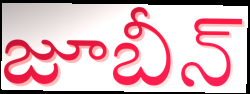
జూబీన్